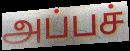
அப்பச்